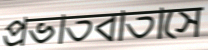
প্রভাতবাতাসে